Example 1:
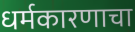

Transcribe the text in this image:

धर्मकारणाचा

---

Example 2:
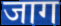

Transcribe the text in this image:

जाग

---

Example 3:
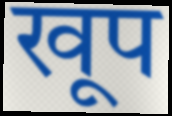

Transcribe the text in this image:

खूप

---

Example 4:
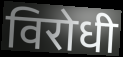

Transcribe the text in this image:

विरोधी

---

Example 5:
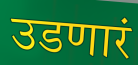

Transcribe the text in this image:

उडणारं